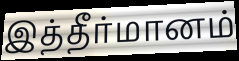
இத்தீர்மானம்